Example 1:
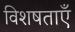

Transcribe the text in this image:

विशषताएँ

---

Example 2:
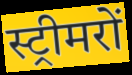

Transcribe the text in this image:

स्ट्रीमरों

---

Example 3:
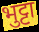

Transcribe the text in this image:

भुट्टा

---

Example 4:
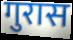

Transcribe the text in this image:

गुरास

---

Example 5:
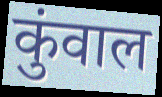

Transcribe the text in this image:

कुंवाल